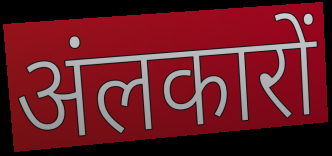
अंलकारों